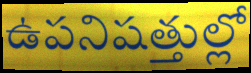
ఉపనిషత్తుల్లో